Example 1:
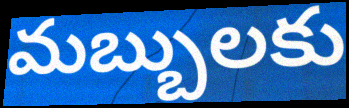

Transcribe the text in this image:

మబ్బులకు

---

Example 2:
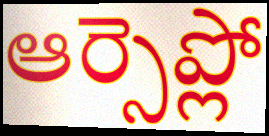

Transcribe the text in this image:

ఆర్సెప్లో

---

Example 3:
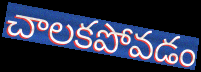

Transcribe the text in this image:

చాలకపోవడం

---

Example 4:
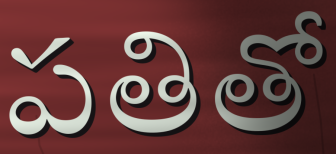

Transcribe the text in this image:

పతితో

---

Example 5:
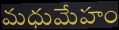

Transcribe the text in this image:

మధుమేహం